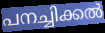
പനച്ചിക്കൽ